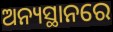
ଅନ୍ୟସ୍ଥାନରେ